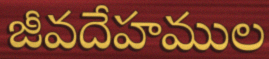
జీవదేహముల